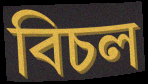
বিচল